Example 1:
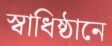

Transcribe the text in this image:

স্বাধিষ্ঠানে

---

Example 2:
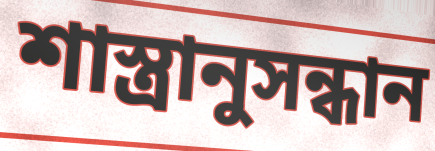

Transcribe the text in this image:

শাস্ত্রানুসন্ধান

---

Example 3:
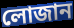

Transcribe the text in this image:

লোজান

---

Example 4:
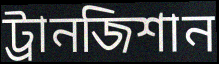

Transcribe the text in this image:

ট্রানজিশান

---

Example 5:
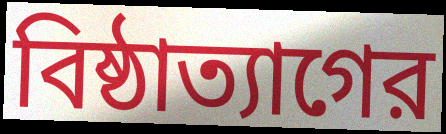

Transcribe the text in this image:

বিষ্ঠাত্যাগের